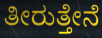
ತೀರುತ್ತೇನೆ